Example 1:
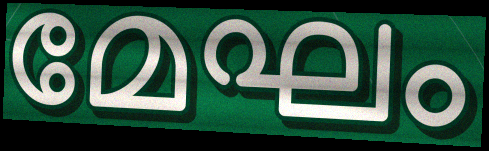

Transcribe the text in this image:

മേഘം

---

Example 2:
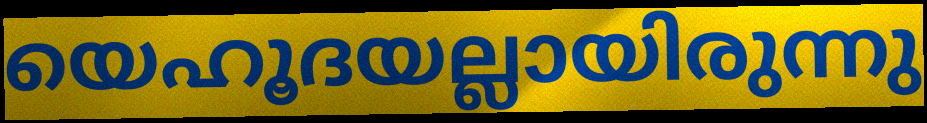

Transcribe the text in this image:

യെഹൂദയല്ലായിരുന്നു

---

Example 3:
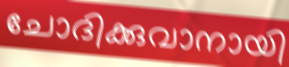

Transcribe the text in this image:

ചോദിക്കുവാനായി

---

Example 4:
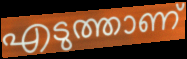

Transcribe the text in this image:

എടുത്താണ്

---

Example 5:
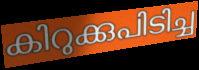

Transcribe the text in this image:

കിറുക്കുപിടിച്ച